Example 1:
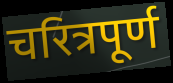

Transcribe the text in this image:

चरित्रपूर्ण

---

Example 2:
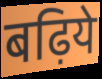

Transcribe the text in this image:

बढ़िये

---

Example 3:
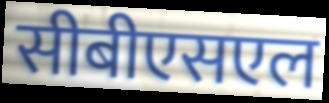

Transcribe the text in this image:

सीबीएसएल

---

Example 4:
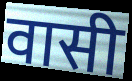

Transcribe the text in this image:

वासी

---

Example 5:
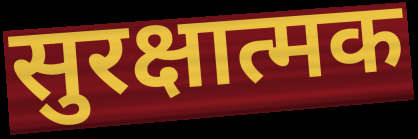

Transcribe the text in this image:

सुरक्षात्मक